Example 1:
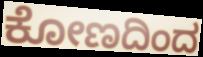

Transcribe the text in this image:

ಕೋಣದಿಂದ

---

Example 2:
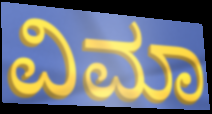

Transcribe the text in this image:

ವಿಮಾ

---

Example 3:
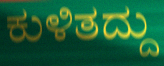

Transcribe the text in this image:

ಕುಳಿತದ್ದು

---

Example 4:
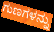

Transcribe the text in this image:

ಗುಣಗಳನ್ನು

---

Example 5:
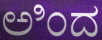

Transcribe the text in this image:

ಅಿಂದ